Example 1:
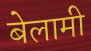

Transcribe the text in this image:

बेलामी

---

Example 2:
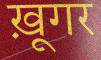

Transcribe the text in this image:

ख़ूगर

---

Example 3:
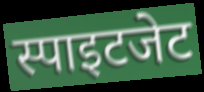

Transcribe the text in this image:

स्पाइटजेट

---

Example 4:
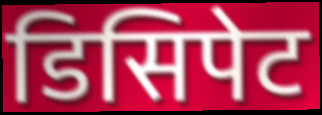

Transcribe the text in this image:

डिसिपेट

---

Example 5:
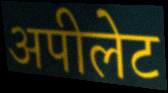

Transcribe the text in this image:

अपीलेट